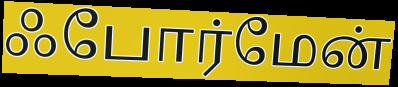
ஃபோர்மேன்